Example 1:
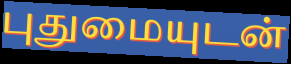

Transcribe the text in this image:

புதுமையுடன்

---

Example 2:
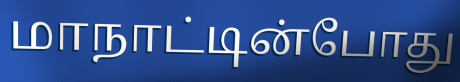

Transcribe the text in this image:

மாநாட்டின்போது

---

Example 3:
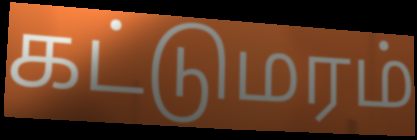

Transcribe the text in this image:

கட்டுமரம்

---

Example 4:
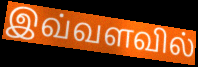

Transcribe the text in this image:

இவ்வளவில்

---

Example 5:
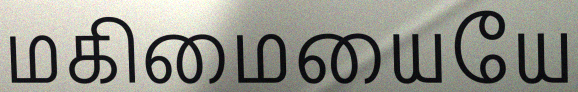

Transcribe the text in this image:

மகிமையையே